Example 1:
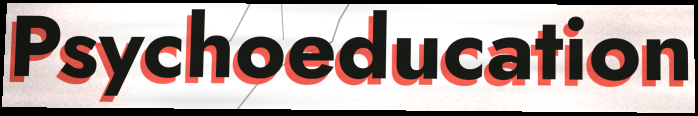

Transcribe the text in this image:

Psychoeducation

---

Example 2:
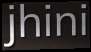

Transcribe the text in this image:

jhini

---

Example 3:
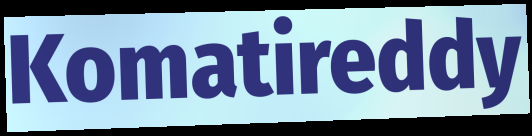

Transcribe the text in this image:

Komatireddy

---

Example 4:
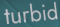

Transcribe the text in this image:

turbid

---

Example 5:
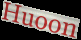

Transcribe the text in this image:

Huoon